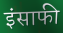
इंसाफी